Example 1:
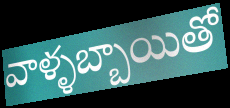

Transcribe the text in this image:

వాళ్ళబ్బాయితో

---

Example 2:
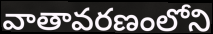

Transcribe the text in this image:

వాతావరణంలోని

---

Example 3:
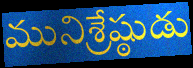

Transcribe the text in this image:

మునిశ్రేష్ఠుడు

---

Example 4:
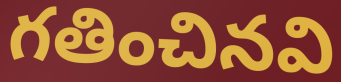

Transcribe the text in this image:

గతించినవి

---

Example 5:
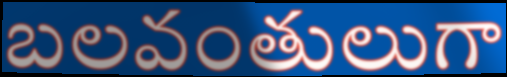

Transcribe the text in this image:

బలవంతులుగా